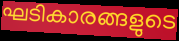
ഘടികാരങ്ങളുടെ